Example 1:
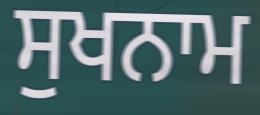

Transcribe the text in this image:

ਸੁਖਨਾਮ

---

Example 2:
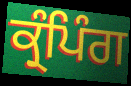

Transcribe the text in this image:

ਕ੍ਰੰਪਿੰਗ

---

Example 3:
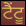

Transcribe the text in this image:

ਟੈਂਟੂ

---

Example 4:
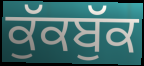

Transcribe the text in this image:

ਕੁੱਕਬੁੱਕ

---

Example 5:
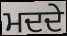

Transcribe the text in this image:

ਮਦਦੇ